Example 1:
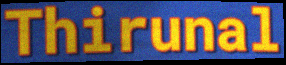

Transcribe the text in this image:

Thirunal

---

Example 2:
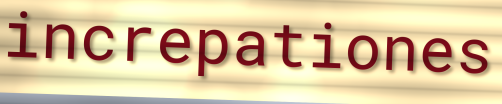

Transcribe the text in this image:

increpationes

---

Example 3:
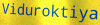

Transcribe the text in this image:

Viduroktiya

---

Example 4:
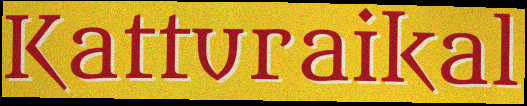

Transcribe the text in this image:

Katturaikal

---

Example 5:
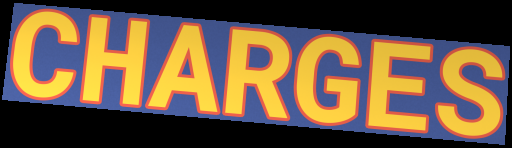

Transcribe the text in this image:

CHARGES